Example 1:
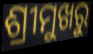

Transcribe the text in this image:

ଶ୍ରୀମୁଖରୁ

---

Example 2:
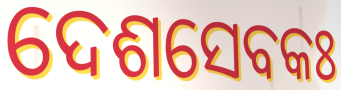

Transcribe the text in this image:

ଦେଶସେବକଃ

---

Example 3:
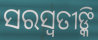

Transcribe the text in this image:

ସରସ୍ୱତୀଙ୍କି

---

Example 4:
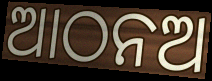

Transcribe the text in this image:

ଆଠନଅ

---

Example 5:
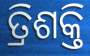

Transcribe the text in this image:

ତ୍ରିଶକ୍ତି